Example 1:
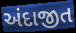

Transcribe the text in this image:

અંદાજીત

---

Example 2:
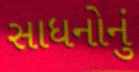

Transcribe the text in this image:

સાધનોનું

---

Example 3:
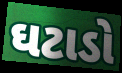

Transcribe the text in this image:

ઘટાડો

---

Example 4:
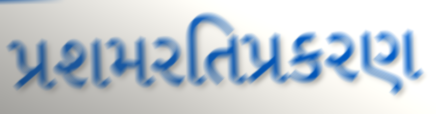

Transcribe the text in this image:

પ્રશમરતિપ્રકરણ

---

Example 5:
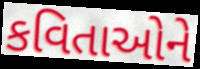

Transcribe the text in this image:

કવિતાઓને